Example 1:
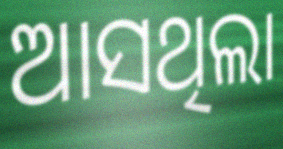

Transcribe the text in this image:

ଆସଥିଲା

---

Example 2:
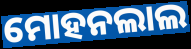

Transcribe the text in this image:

ମୋହନଲାଲ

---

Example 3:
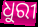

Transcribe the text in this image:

ଧୁରୀ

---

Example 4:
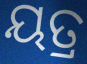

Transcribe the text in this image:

ୟତ୍ର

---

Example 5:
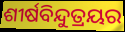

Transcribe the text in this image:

ଶୀର୍ଷବିନ୍ଦୁତ୍ରୟର